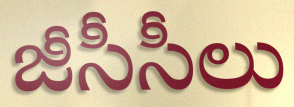
జీసీసీలు